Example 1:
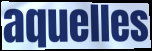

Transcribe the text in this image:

aquelles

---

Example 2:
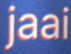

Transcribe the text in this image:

jaai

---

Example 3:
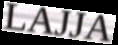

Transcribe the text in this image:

LAJJA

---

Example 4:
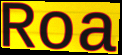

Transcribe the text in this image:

Roa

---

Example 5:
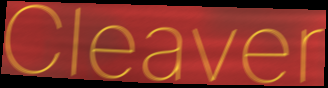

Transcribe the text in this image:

Cleaver